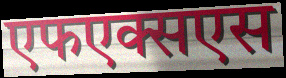
एफएक्सएस